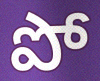
పో